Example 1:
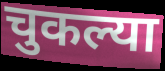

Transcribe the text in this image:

चुकल्या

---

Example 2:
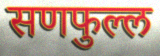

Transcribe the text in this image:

सणफुल्ल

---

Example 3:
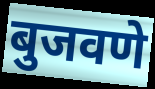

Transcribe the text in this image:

बुजवणे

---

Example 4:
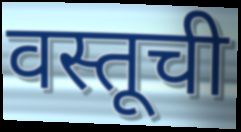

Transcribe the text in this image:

वस्तूची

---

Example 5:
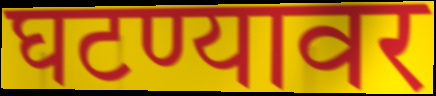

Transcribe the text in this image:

घटण्यावर